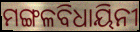
ମଙ୍ଗଳବିଧାୟିନୀ